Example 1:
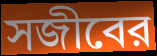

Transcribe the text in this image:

সজীবের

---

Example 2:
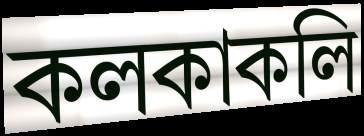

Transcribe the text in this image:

কলকাকলি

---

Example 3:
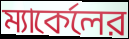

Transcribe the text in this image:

ম্যার্কেলের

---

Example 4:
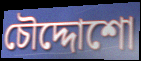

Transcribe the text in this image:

চৌদ্দোশো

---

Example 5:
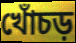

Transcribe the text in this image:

খোঁচড়